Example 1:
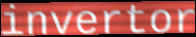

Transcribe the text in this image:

invertor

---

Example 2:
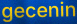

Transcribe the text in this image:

gecenin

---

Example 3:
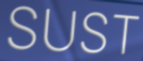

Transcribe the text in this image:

SUST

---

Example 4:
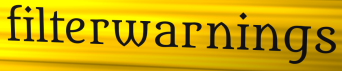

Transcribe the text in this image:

filterwarnings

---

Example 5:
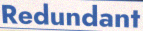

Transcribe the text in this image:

Redundant